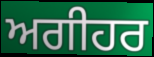
ਅਗੀਹਰ